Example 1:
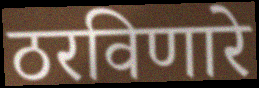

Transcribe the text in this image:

ठरविणारे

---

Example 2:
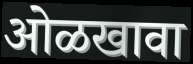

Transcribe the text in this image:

ओळखावा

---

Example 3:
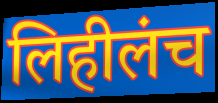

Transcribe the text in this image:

लिहीलंच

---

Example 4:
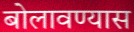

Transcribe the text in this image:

बोलावण्यास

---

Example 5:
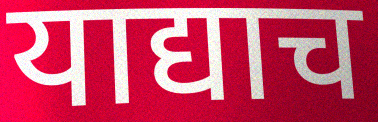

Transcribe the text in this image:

याद्याच